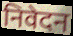
निवेदन